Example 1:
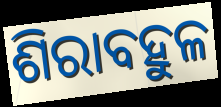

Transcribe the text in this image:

ଶିରାବହୁଳ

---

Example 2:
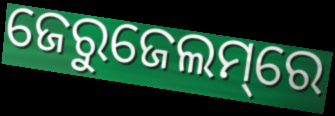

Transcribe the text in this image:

ଜେରୁଜେଲମ୍‌ରେ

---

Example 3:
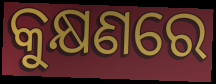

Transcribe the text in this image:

କୁକ୍ଷଣରେ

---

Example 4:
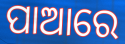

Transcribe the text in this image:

ପାଆରେ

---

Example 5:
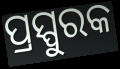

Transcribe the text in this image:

ପ୍ରସ୍ପୁରକ